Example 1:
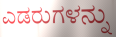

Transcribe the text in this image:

ಎಡರುಗಳನ್ನು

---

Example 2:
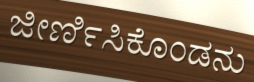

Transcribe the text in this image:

ಜೀರ್ಣಿಸಿಕೊಂಡನು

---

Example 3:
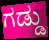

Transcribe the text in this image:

ಗಡ್ಡು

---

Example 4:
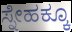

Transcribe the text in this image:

ಸ್ನೇಹಕ್ಕೂ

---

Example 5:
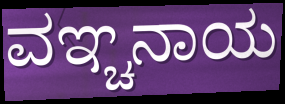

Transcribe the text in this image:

ವಞ್ಚನಾಯ